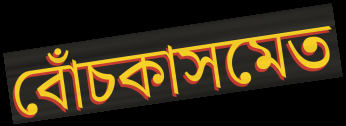
বোঁচকাসমেত